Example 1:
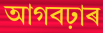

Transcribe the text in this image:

আগবঢ়াৰ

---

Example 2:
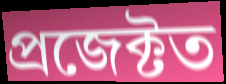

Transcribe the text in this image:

প্ৰজেক্টত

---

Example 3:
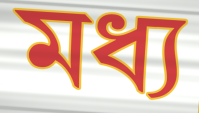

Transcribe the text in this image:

মধ্য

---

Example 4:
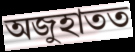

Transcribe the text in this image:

অজুহাতত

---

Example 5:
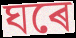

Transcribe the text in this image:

ঘৰে